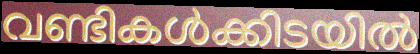
വണ്ടികൾക്കിടയിൽ